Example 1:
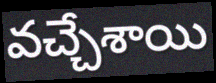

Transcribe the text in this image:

వచ్చేశాయి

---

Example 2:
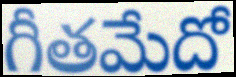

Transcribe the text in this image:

గీతమేదో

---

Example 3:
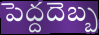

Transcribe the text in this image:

పెద్దదెబ్బ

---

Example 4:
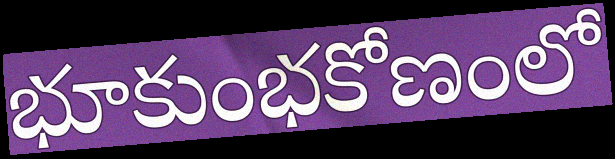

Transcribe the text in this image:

భూకుంభకోణంలో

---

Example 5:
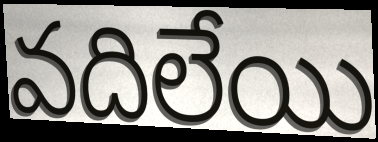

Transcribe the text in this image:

వదిలేయి